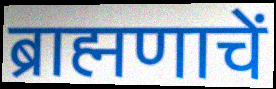
ब्राह्मणाचें